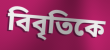
বিবৃতিকে